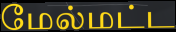
மேல்மட்ட